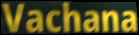
Vachana